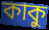
কাকু